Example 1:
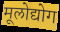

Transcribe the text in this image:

मूलोद्योग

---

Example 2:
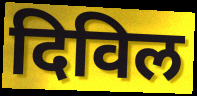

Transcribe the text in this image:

दिविल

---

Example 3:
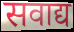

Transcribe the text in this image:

सवाद्य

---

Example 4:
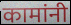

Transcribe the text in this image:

कामांनी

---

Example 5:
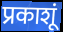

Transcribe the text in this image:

प्रकाशूं